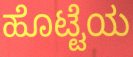
ಹೊಟ್ಟೆಯ